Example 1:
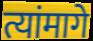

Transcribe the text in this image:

त्यांमागे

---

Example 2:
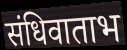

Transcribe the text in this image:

संधिवाताभ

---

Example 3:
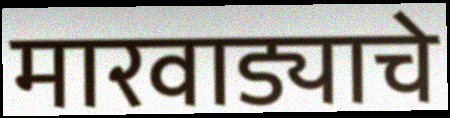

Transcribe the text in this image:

मारवाड्याचे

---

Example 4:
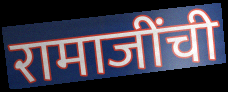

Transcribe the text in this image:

रामाजींची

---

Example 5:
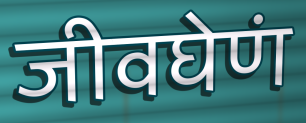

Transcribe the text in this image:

जीवघेणं